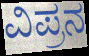
ವಿಪ್ರನ